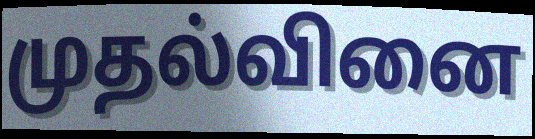
முதல்வினை